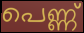
പെണ്ണ്